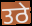
उठे